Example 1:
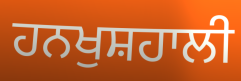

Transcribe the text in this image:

ਹਨਖੁਸ਼ਹਾਲੀ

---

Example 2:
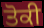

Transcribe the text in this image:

ਤੋਕੀ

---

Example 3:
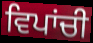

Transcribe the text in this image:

ਵਿਪਾਂਚੀ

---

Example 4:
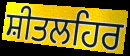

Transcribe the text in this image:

ਸ਼ੀਤਲਹਿਰ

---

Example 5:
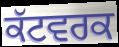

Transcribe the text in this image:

ਕੱਟਵਰਕ